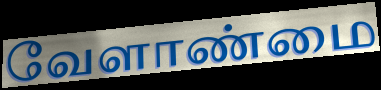
வேளாண்மை